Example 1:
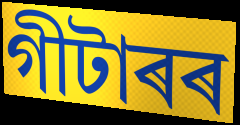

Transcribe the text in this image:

গীটাৰৰ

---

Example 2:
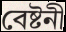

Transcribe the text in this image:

বেষ্টনী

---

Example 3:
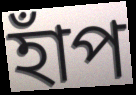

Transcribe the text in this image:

হাঁপ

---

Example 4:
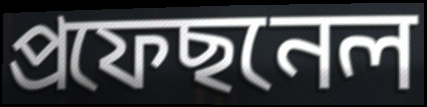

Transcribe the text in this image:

প্ৰফেছনেল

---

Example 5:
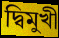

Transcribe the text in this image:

দ্বিমুখী